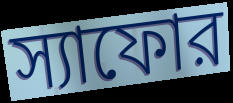
স্যাফোর